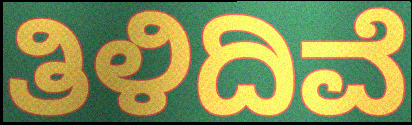
ತಿಳಿದಿವೆ